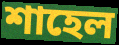
শাহেল